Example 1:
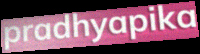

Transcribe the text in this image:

pradhyapika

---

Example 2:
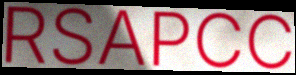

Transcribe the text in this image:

RSAPCC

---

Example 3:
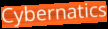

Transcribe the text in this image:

Cybernatics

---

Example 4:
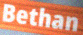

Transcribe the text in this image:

Bethan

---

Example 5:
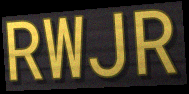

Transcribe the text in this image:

RWJR